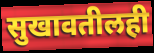
सुखावतीलही